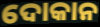
ଦୋକାନ